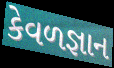
કેવળજ્ઞાન